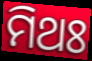
ମିଥଃ